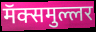
मॅक्समुल्लर